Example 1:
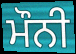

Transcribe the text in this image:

ਮੌਨੀ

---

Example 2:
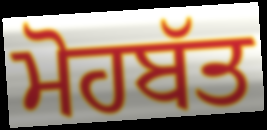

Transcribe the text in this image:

ਮੋਹਬੱਤ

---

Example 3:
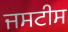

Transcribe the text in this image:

ਜਸਟੀਸ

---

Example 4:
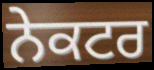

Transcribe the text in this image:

ਨੇਕਟਰ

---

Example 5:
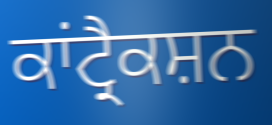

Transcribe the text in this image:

ਕਾਂਟ੍ਰੈਕਸ਼ਨ